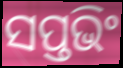
ସପ୍ତଭିଂ